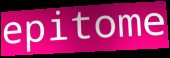
epitome